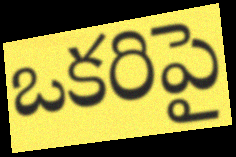
ఒకరిపై